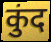
कुंद